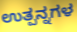
ಉತ್ಪನ್ನಗಳ